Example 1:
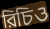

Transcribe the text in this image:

রিচিও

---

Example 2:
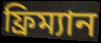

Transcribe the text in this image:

ফ্রিম্যান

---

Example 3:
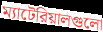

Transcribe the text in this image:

ম্যাটেরিয়ালগুলো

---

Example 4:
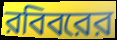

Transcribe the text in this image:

রবিবরের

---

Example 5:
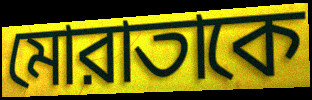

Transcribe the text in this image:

মোরাতাকে